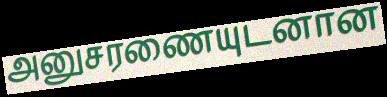
அனுசரணையுடனான